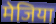
मेजिया